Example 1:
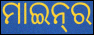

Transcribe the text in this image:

ମାଇନ୍‍ର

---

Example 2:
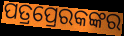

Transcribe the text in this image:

ପତ୍ରପ୍ରେରକଙ୍କର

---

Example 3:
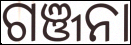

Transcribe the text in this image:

ଗଞ୍ଜନା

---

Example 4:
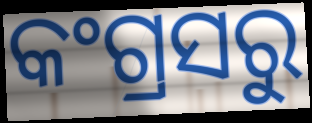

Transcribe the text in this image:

କଂଗ୍ରସରୁ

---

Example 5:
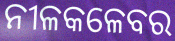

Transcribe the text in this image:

ନୀଳକଳେବର